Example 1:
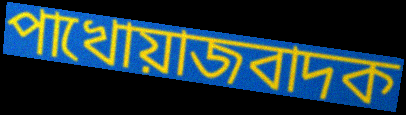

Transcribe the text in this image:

পাখোয়াজবাদক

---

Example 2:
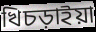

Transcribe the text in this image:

খিচড়াইয়া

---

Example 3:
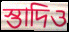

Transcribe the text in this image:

স্তাদিও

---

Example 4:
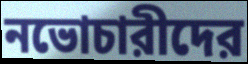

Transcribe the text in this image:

নভোচারীদের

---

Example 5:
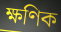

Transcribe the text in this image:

ক্ষণিক